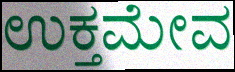
ಉಕ್ತಮೇವ